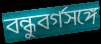
বন্ধুবর্গসঙ্গে